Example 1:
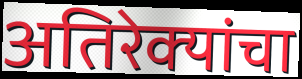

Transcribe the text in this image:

अतिरेक्यांचा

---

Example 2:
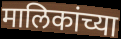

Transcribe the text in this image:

मालिकांच्या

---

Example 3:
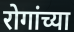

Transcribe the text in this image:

रोगांच्या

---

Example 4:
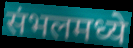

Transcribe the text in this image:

संभलमध्ये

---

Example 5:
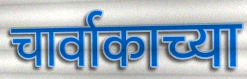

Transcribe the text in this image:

चार्वाकाच्या